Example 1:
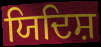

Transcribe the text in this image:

ਯਿਦਿਸ਼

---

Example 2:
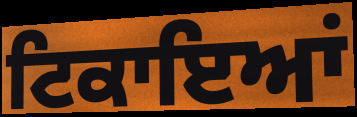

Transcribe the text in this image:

ਟਿਕਾਇਆਂ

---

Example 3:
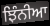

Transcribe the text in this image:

ਝਿੰਨੀਆ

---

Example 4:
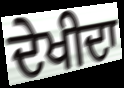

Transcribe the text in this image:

ਦੇਖੀਦਾ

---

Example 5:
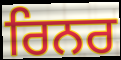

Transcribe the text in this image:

ਰਿਨਰ